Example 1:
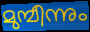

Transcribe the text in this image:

മുമ്പീന്നും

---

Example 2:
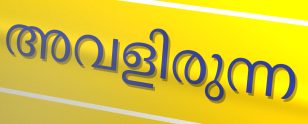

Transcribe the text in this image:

അവളിരുന്ന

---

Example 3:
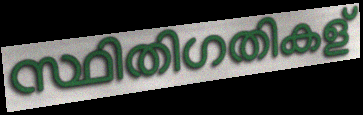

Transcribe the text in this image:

സ്ഥിതിഗതികള്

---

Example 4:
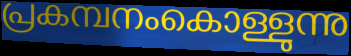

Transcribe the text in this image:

പ്രകമ്പനംകൊള്ളുന്നു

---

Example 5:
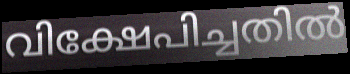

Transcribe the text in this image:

വിക്ഷേപിച്ചതിൽ